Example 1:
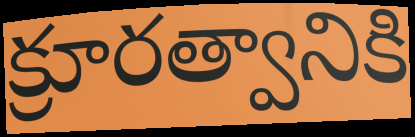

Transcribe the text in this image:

క్రూరత్వానికి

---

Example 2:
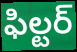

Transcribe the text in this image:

ఫిల్టర్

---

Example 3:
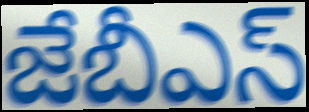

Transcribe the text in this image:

జేబీఎస్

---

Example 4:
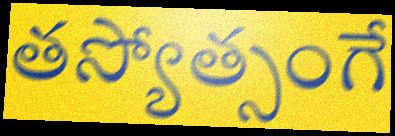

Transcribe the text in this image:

తస్యోత్సంగే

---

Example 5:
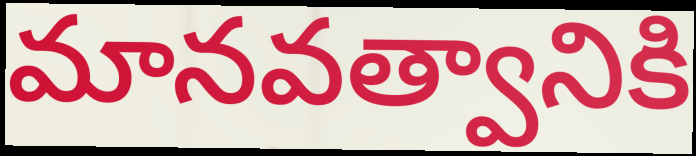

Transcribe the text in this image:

మానవత్వానికి